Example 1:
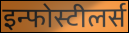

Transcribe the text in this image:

इन्फोस्टीलर्स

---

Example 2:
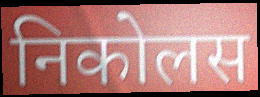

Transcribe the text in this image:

निकोलस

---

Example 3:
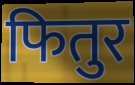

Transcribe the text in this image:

फितुर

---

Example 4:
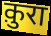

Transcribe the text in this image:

क़ुरा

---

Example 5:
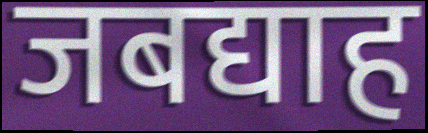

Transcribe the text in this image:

जबद्याह